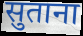
सुताना